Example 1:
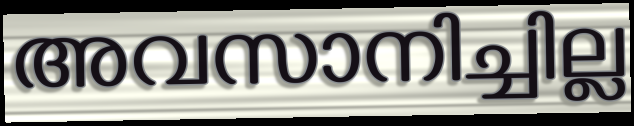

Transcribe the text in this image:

അവസാനിച്ചില്ല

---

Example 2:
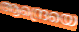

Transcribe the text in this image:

ആന്ദ്രെയെ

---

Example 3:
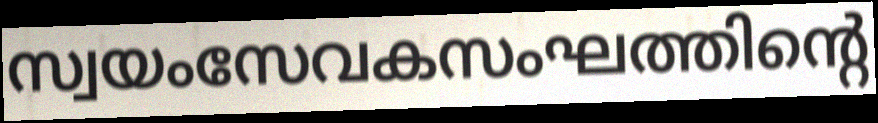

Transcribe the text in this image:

സ്വയംസേവകസംഘത്തിന്റെ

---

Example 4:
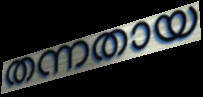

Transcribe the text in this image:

തന്നതായ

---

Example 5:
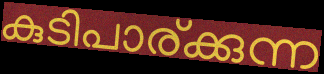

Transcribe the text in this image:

കുടിപാര്ക്കുന്ന